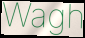
Wagh